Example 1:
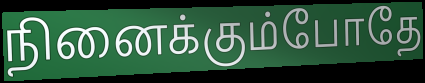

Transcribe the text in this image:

நினைக்கும்போதே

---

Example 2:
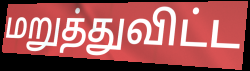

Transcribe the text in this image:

மறுத்துவிட்ட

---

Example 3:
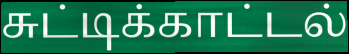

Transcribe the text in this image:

சுட்டிக்காட்டல்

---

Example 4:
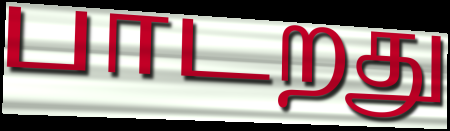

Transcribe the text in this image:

பாடறது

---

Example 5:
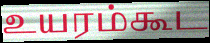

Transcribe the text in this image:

உயரம்கூட